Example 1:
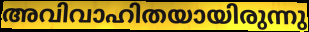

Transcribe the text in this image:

അവിവാഹിതയായിരുന്നു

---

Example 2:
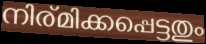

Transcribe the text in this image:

നിര്മിക്കപ്പെട്ടതും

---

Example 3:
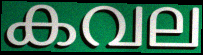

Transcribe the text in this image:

കവല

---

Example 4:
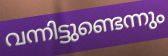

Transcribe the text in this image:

വന്നിട്ടുണ്ടെന്നും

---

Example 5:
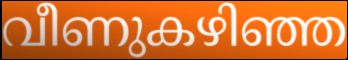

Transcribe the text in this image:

വീണുകഴിഞ്ഞ